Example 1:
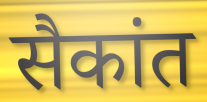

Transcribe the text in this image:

सैकांत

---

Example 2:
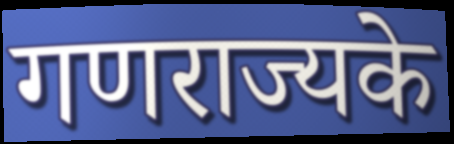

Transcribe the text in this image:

गणराज्यके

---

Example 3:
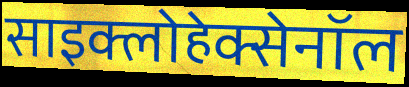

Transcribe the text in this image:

साइक्लोहेक्सेनॉल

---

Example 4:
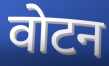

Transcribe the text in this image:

वोटन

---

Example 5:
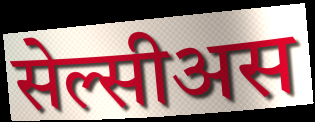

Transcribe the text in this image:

सेल्सीअस